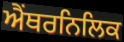
ਐਂਥਰਨਿਲਿਕ